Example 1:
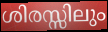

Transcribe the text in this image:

ശിരസ്സിലും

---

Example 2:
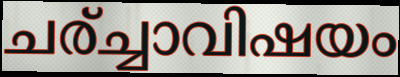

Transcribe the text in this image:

ചര്ച്ചാവിഷയം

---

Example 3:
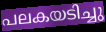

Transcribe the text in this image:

പലകയടിച്ചു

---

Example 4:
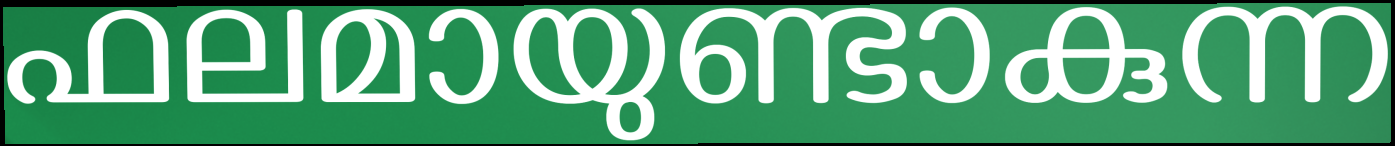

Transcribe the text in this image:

ഫലമായുണ്ടാകുന്ന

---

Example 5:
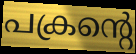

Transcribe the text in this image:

പക്രന്റെ